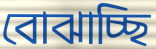
বোঝাচ্ছি